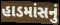
હાડમાંસનું